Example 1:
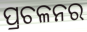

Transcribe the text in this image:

ପ୍ରଚଳନର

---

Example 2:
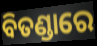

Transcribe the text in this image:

ବିତଣ୍ଡାରେ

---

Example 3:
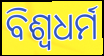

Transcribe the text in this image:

ବିଶ୍ବଧର୍ମ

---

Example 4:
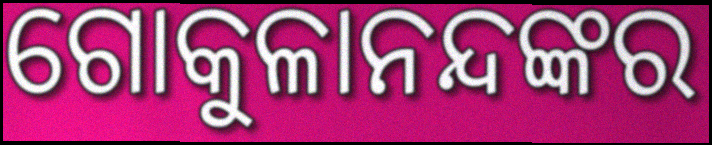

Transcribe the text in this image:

ଗୋକୁଳାନନ୍ଦଙ୍କର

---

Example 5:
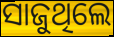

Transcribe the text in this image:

ସାଜୁଥିଲେ